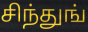
சிந்துங்